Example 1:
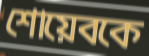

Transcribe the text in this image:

শোয়েবকে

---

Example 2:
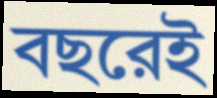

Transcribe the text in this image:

বছরেই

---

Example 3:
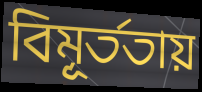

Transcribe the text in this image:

বিমূর্ততায়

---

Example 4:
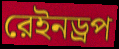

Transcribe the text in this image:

রেইনড্রপ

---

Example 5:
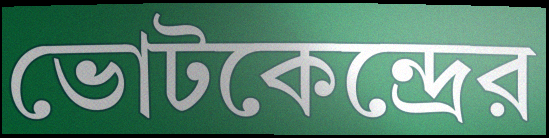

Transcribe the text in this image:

ভোটকেন্দ্রের